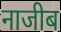
नाजीब